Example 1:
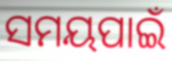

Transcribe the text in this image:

ସମୟପାଇଁ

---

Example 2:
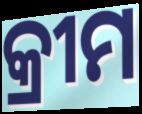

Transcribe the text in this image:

କ୍ରୀମ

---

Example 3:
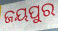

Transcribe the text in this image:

ଜୟପୁର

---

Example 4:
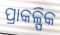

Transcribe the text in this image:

ପ୍ରାକଳ୍ପିକ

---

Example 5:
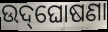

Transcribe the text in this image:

ଉଦ୍‌ଘୋଷଣା